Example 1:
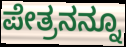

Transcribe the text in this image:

ಪೇತ್ರನನ್ನೂ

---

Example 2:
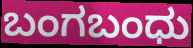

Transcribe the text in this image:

ಬಂಗಬಂಧು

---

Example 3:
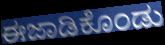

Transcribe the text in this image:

ಈಜಾಡಿಕೊಂಡು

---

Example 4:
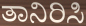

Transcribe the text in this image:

ತಾನಿರಿಸಿ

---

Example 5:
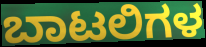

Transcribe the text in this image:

ಬಾಟಲಿಗಳ